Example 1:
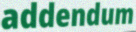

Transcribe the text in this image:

addendum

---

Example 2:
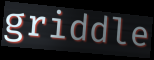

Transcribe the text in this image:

griddle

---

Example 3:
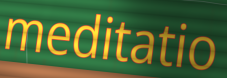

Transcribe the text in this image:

meditatio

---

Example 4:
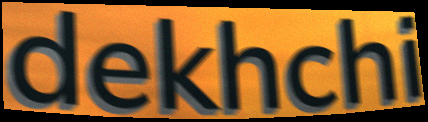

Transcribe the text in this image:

dekhchi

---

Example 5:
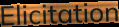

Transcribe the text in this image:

Elicitation